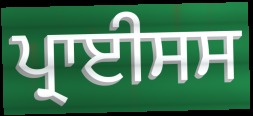
ਪ੍ਰਾਈਸਸ